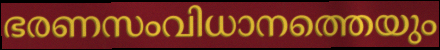
ഭരണസംവിധാനത്തെയും